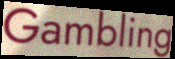
Gambling